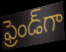
ఫ్రెండ్‌గా